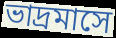
ভাদ্রমাসে